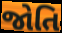
જોતિ